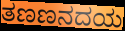
ತಣಣನದಯ